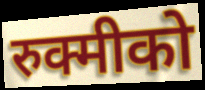
रुक्मीको